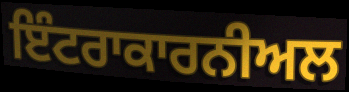
ਇੰਟਰਾਕਾਰਨੀਅਲ